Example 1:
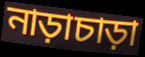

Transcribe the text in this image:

নাড়াচাড়া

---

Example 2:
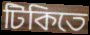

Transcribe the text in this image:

টিকিতে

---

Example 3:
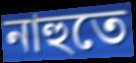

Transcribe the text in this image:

নাহুতে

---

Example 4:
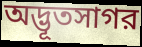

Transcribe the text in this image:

অদ্ভূতসাগর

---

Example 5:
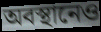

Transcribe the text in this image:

অবস্থানেও